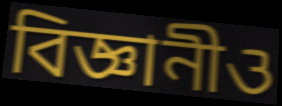
বিজ্ঞানীও